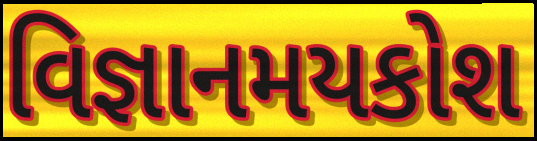
વિજ્ઞાનમયકોશ